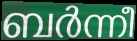
ബർന്നീ